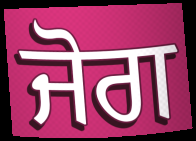
ਜੋਗ